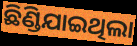
ଛିଣ୍ଡିଯାଇଥିଲା